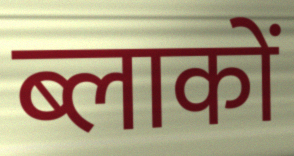
ब्लाकों